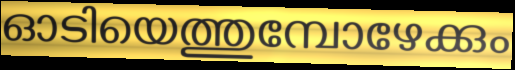
ഓടിയെത്തുമ്പോഴേക്കും